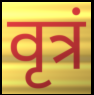
वृत्रं